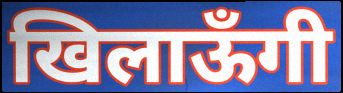
खिलाऊँगी